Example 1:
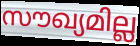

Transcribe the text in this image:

സൗഖ്യമില്ല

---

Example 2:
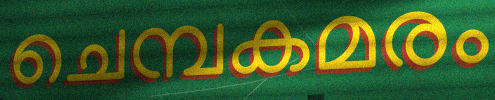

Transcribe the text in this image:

ചെമ്പകമരം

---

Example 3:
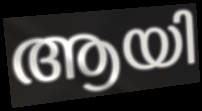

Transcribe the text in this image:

ആയി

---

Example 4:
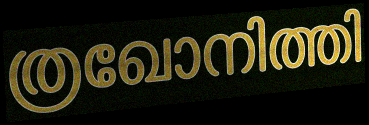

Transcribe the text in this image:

ത്രഖോനിത്തി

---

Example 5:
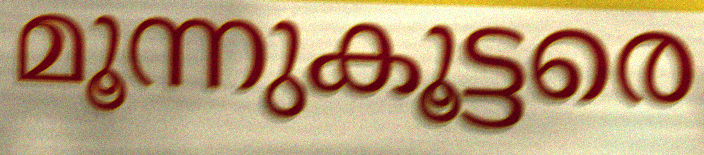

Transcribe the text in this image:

മൂന്നുകൂട്ടരെ